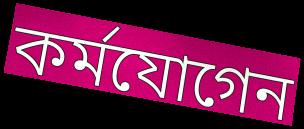
কর্মযোগেন